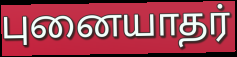
புனையாதர்